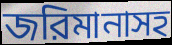
জরিমানাসহ